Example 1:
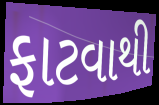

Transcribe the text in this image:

ફાટવાથી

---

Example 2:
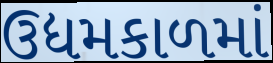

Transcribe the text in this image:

ઉદ્યમકાળમાં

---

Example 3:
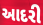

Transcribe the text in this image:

આદરી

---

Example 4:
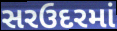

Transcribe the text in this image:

સરઉદરમાં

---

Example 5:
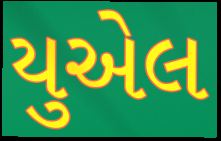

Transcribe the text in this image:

યુએલ